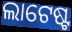
ଲାଟେଷ୍ଟ